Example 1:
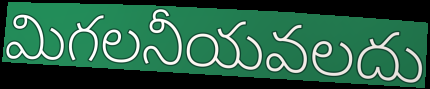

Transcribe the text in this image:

మిగలనీయవలదు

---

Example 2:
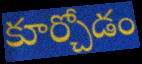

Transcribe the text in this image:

కూర్చోడం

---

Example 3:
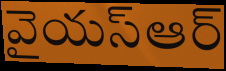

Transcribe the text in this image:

వైయస్ఆర్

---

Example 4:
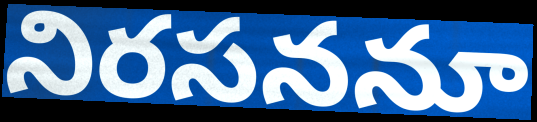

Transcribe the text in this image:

నిరసననూ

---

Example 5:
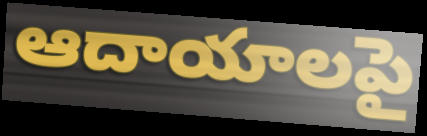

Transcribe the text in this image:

ఆదాయాలపై